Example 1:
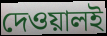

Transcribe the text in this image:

দেওয়ালই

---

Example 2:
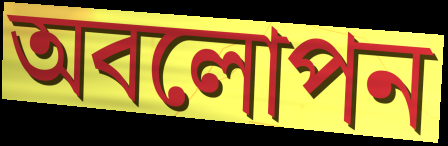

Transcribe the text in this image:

অবলোপন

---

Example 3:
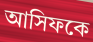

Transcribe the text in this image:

আসিফকে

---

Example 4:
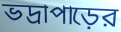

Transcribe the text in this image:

ভদ্রাপাড়ের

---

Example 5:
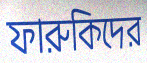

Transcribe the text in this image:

ফারুকিদের